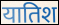
यातिश